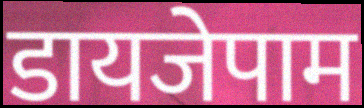
डायजेपाम